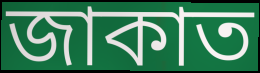
জাকাত